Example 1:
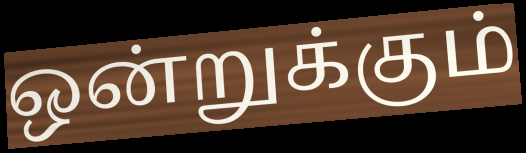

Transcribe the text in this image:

ஒன்றுக்கும்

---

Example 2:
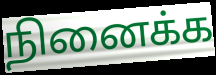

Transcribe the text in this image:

நினைக்க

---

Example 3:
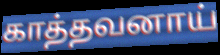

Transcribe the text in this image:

காத்தவனாய்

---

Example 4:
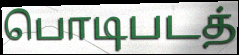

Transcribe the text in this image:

பொடிபடத்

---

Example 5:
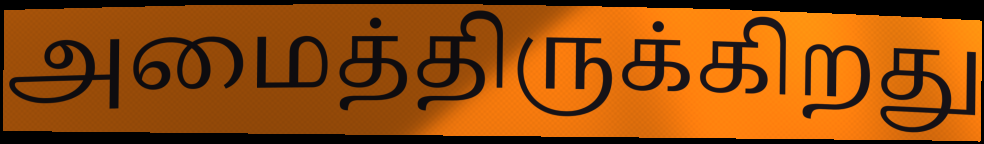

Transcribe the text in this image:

அமைத்திருக்கிறது